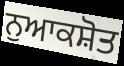
ਨੁਆਕਸ਼ੋਤ